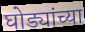
घोड्यांच्या